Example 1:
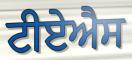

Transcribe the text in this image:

ਟੀਏਐਸ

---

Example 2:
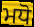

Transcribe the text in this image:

ਮਧੋ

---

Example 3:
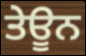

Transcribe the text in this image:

ਤੇਊਨ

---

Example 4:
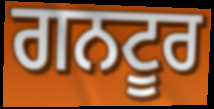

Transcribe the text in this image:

ਗਨਟੂਰ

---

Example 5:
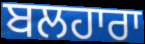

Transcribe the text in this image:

ਬਲਹਾਰਾ